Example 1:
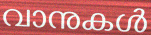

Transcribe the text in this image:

വാനുകൾ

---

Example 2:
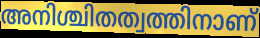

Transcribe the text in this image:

അനിശ്ചിതത്വത്തിനാണ്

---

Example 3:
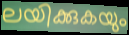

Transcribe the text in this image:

ലയിക്കുകയും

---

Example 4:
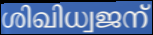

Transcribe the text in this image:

ശിഖിധ്വജന്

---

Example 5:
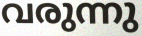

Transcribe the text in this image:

വരുന്നു